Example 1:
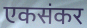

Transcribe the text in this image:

एकसंकर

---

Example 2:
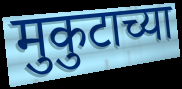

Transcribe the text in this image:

मुकुटाच्या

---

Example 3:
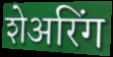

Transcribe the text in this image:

शेअरिंग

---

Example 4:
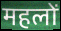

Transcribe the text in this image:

महलों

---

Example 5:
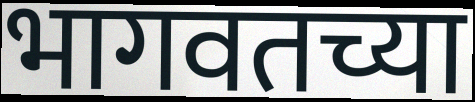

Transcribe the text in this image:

भागवतच्या